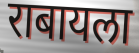
राबायला